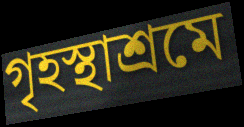
গৃহস্থাশ্রমে